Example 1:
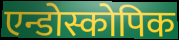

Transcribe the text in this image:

एन्डोस्कोपिक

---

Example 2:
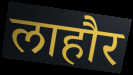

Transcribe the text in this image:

लाहौर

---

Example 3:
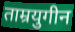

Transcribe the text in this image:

ताम्रयुगीन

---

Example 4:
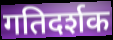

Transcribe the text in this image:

गतिदर्शक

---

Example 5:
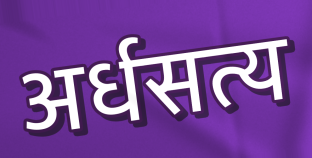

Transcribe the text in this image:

अर्धसत्य